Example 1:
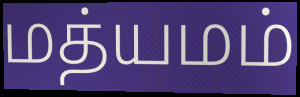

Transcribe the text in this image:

மத்யமம்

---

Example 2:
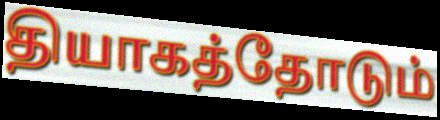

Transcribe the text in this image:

தியாகத்தோடும்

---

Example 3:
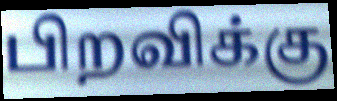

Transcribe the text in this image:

பிறவிக்கு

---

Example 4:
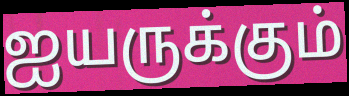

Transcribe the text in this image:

ஐயருக்கும்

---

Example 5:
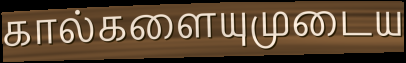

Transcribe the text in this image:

கால்களையுமுடைய